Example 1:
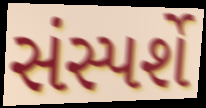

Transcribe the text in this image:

સંસ્પર્શે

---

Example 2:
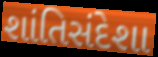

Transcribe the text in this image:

શાંતિસંદેશા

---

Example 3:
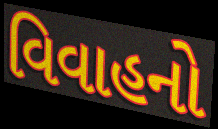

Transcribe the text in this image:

વિવાહનો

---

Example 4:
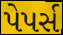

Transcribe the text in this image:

પેપર્સ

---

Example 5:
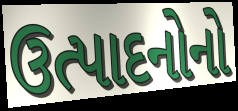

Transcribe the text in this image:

ઉત્પાદનોનો